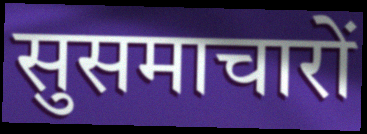
सुसमाचारों